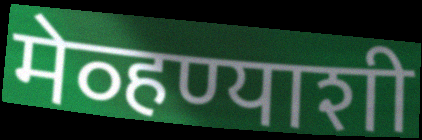
मेव्हण्याशी